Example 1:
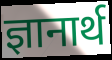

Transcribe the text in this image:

ज्ञानार्थ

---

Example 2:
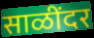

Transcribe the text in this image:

साळींदर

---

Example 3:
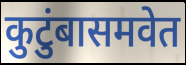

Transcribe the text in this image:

कुटुंबासमवेत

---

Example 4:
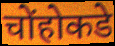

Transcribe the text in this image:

चोंहोकडे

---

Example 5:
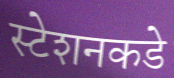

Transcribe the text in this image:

स्टेशनकडे